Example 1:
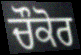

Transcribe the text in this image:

ਚੌਕੋਰ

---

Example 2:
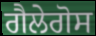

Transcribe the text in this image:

ਗੈਲੇਗੋਸ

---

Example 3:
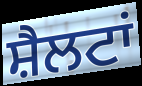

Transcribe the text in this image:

ਸ਼ੈਲਟਾਂ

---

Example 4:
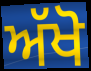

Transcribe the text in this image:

ਅੱਖੋ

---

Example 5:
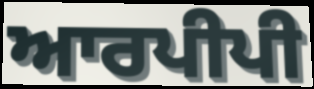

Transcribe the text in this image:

ਆਰਪੀਪੀ